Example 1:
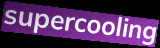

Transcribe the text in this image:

supercooling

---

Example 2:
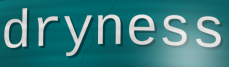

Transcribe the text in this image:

dryness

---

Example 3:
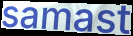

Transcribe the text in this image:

samast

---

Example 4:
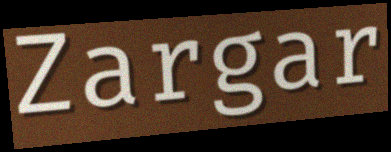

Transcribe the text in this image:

Zargar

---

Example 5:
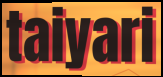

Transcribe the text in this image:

taiyari